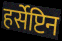
हर्सेप्टिन